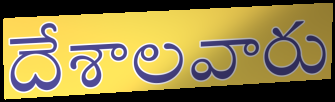
దేశాలవారు